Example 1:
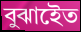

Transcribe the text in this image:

বুঝাইেত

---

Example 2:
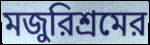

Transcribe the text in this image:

মজুরিশ্রমের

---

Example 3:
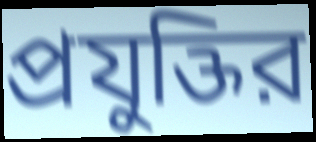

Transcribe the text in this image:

প্রযুক্তির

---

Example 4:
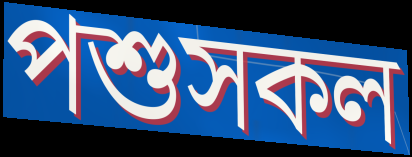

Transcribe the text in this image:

পশুসকল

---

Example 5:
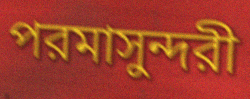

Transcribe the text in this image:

পরমাসুন্দরী